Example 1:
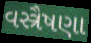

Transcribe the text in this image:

વસ્ત્રૈષણા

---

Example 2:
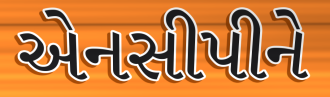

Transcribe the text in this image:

એનસીપીને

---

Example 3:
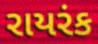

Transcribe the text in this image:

રાયરંક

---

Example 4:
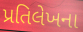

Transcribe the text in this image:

પ્રતિલેખના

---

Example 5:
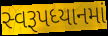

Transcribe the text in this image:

સ્વરૂપધ્યાનમાં